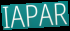
IAPAR